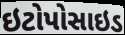
ઇટોપોસાઇડ